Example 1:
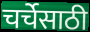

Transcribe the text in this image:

चर्चेसाठी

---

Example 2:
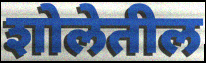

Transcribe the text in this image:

शोलेतील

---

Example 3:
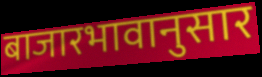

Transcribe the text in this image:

बाजारभावानुसार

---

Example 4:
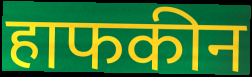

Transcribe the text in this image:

हाफकीन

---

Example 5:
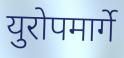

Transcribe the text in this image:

युरोपमार्गे